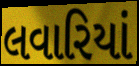
લવારિયાં